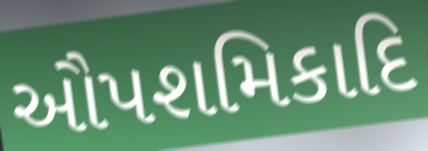
ઔપશમિકાદિ